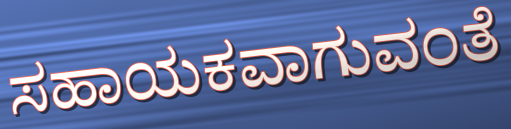
ಸಹಾಯಕವಾಗುವಂತೆ